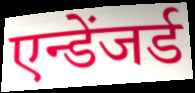
एन्डेंजर्ड